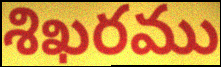
శిఖరము